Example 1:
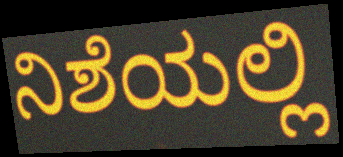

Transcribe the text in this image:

ನಿಶೆಯಲ್ಲಿ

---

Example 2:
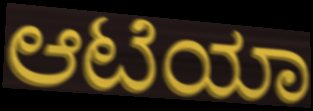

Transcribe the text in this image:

ಆಟೆಯಾ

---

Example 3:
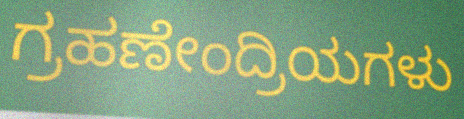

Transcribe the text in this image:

ಗ್ರಹಣೇಂದ್ರಿಯಗಳು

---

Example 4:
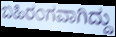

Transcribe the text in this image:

ಬಹಿರಂಗವಾಗಿದ್ದು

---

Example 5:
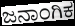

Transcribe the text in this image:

ಜನಾಂಗಿಕ